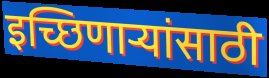
इच्छिणाऱ्यांसाठी